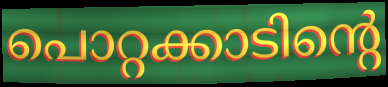
പൊറ്റക്കാടിന്റെ